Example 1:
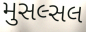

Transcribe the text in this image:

મુસલ્સલ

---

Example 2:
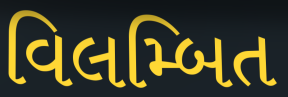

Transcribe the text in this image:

વિલમ્બિત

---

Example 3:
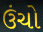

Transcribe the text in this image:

ઉંચો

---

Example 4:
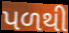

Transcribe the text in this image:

પળથી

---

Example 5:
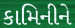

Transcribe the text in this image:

કામિનીને